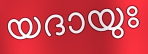
യദായുഃ